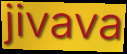
jivava